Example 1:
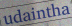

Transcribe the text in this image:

udaintha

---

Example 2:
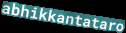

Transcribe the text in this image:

abhikkantataro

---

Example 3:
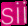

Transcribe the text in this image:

sii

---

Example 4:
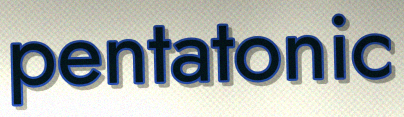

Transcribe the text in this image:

pentatonic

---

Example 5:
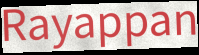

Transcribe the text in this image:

Rayappan